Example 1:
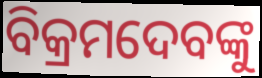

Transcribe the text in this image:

ବିକ୍ରମଦେବଙ୍କୁ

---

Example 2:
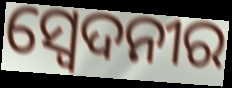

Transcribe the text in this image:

ସ୍ୱେଦନୀର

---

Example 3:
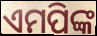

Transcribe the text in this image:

ଏମପିଙ୍କ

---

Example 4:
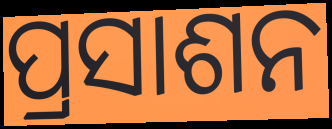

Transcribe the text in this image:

ପ୍ରସାଶନ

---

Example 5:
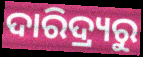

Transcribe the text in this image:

ଦାରିଦ୍ର୍ୟରୁ